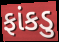
ફાંકડુ